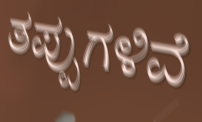
ತಪ್ಪುಗಳಿವೆ